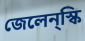
জেলেন্স্কি